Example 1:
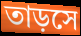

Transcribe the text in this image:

তাড়সে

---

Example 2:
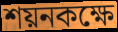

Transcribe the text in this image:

শয়নকক্ষে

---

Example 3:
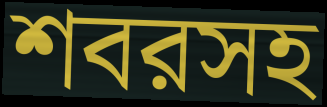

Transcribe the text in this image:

শবরসহ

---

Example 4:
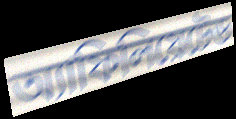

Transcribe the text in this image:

অ্যাফিলিয়েটেড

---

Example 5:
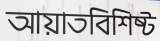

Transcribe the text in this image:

আয়াতবিশিষ্ট